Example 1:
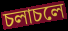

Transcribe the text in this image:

চলাচলে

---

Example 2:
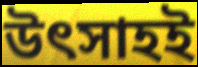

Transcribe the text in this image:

উৎসাহই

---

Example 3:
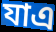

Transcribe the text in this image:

যাএ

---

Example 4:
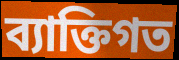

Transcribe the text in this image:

ব্যাক্তিগত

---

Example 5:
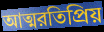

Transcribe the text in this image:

আত্মরতিপ্রিয়